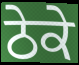
ਠੇਕੇ